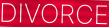
DIVORCE